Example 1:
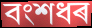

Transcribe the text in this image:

বংশধৰ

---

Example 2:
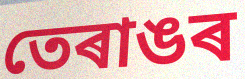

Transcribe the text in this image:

তেৰাঙৰ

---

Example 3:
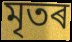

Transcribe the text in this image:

মৃতৰ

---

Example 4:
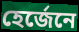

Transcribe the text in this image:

হেৰ্জেনে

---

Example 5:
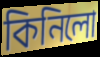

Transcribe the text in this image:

কিনিলো